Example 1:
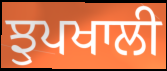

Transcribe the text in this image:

ਝੁਪਖਾਲੀ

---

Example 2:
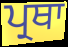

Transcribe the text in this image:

ਪ੍ਰਥਾ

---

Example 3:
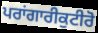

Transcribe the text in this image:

ਪਰਾਂਗਾਰੀਕੁਟੀਰੋ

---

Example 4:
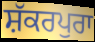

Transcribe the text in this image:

ਸ਼ੱਕਰਪੁਰਾ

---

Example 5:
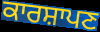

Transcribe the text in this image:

ਕਾਰਸ਼ਾਪਣ